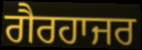
ਗੈਰਹਾਜਰ